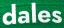
dales